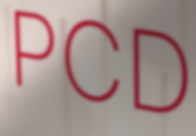
PCD